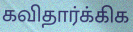
கவிதார்க்கிக